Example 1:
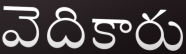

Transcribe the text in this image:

వెదికారు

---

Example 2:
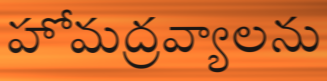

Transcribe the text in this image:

హోమద్రవ్యాలను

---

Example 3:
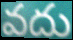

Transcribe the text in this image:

వదు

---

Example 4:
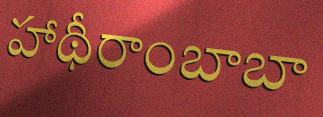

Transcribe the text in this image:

హాథీరాంబాబా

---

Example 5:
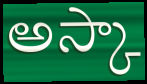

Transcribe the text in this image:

అస్కా